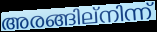
അരങ്ങില്നിന്ന്